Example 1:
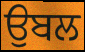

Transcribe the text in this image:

ਉਬਲ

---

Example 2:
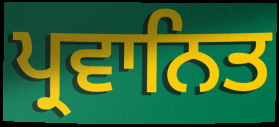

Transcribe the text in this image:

ਪ੍ਰਵਾਨਿਤ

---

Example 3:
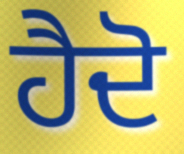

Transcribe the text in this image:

ਹੈਦੋ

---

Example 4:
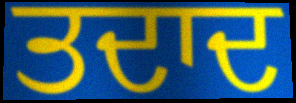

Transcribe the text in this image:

ਤਦਾਦ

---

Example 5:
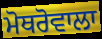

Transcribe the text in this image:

ਮੋਥਰੋਵਾਲਾ